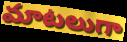
మాటలుగా